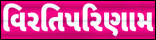
વિરતિપરિણામ